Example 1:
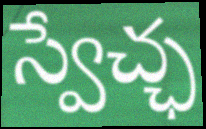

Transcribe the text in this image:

స్వేచ్ఛ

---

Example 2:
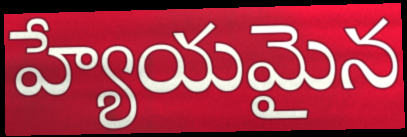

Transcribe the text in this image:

హ్యేయమైన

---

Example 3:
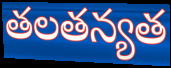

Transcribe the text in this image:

తలతన్యత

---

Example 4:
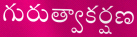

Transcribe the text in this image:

గురుత్వాకర్షణ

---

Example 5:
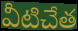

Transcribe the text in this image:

వీటిచేత